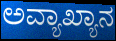
ಅವ್ಯಾಖ್ಯಾನ